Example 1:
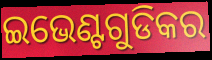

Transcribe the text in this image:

ଇଭେଣ୍ଟଗୁଡିକର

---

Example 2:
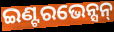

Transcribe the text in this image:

ଇଣ୍ଟରଭେନ୍ସନ୍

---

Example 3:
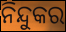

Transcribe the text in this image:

ନିନ୍ଦୁକର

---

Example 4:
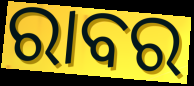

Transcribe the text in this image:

ରାବର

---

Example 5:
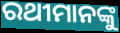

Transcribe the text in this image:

ରଥୀମାନଙ୍କୁ